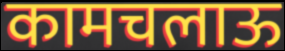
कामचलाऊ